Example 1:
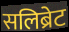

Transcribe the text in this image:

सलिब्रेट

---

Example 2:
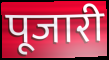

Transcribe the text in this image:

पूजारी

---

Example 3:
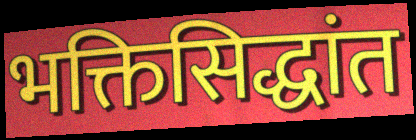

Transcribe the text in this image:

भक्तिसिद्धांत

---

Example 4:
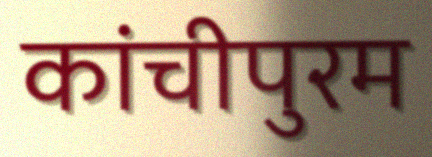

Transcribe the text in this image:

कांचीपुरम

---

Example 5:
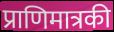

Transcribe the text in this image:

प्राणिमात्रकी